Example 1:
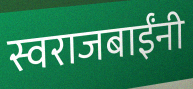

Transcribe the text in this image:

स्वराजबाईंनी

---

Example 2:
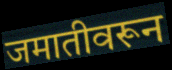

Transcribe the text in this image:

जमातीवरून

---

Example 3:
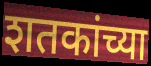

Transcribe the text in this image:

शतकांच्या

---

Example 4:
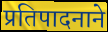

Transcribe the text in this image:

प्रतिपादनाने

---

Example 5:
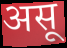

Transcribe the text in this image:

असू